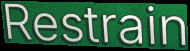
Restrain